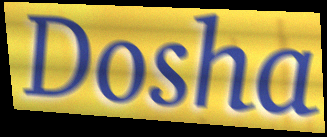
Dosha